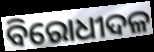
ବିରୋଧୀଦଳ